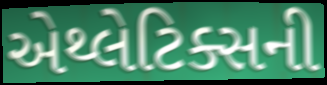
એથ્લેટિક્સની